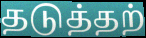
தடுத்தற்